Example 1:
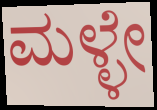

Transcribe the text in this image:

ಮಳ್ಳೇ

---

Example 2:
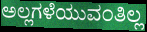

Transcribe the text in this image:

ಅಲ್ಲಗಳೆಯುವಂತಿಲ್ಲ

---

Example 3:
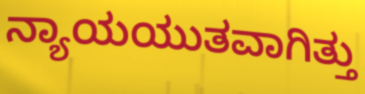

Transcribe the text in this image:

ನ್ಯಾಯಯುತವಾಗಿತ್ತು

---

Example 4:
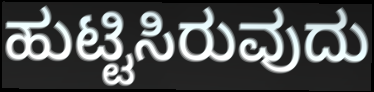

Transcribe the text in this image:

ಹುಟ್ಟಿಸಿರುವುದು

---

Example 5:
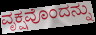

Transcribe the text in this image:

ವೃಕ್ಷವೊಂದನ್ನು